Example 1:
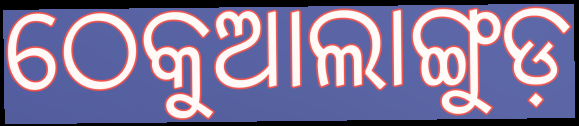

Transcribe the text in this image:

ଠେକୁଆଲାଙ୍ଗୁଡ଼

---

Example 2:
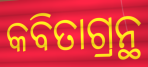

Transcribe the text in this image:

କବିତାଗ୍ରନ୍ଥ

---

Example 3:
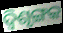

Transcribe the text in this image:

ଦ୍ବିଶୃଙ୍ଗକ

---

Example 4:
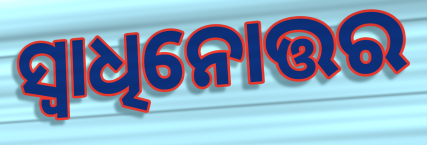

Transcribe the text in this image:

ସ୍ୱାଧିନୋତ୍ତର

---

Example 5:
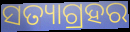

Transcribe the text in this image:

ସତ୍ୟାଗ୍ରହର